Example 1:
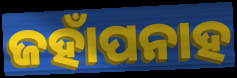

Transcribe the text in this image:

ଜହାଁପନାହ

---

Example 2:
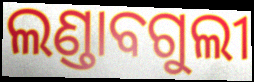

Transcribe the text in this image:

ଲଣ୍ଡାବଗୁଲୀ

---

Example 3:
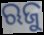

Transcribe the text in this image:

ଋଜୁ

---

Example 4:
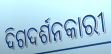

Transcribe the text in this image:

ଦିଗଦର୍ଶନକାରୀ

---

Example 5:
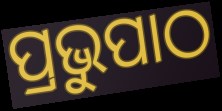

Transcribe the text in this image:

ପ୍ରଭୁପାଠ